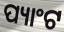
ପ୍ୟାଂଟ